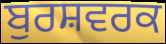
ਬੁਰਸ਼ਵਰਕ